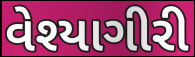
વેશ્યાગીરી